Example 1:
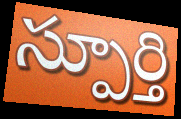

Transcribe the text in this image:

స్పూర్తి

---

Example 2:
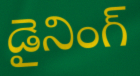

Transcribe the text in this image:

డైనింగ్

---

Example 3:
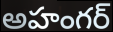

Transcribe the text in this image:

అహంగర్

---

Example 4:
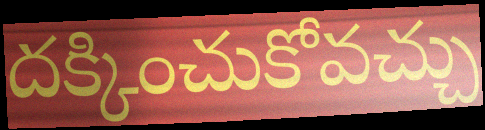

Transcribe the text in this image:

దక్కించుకోవచ్చు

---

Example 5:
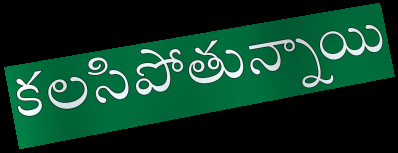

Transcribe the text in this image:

కలసిపోతున్నాయి